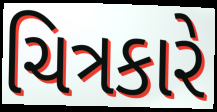
ચિત્રકારે